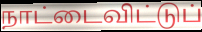
நாட்டைவிட்டுப்